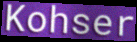
Kohser